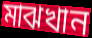
মাঝখান